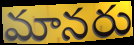
మానరు